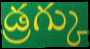
డ్రగ్కు